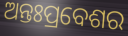
ଅନ୍ତଃପ୍ରବେଶର